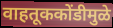
वाहतूककोंडीमुळे